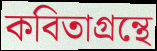
কবিতাগ্রন্থে